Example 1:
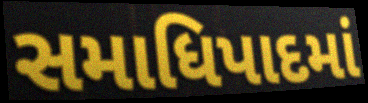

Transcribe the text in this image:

સમાધિપાદમાં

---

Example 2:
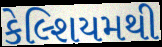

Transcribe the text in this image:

કેલ્શિયમથી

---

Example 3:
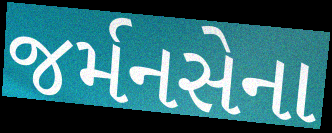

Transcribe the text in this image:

જર્મનસેના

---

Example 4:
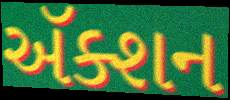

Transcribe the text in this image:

ઍક્શન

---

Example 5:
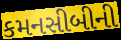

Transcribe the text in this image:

કમનસીબીની